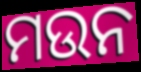
ମଉନ